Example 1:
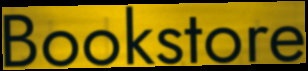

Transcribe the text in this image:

Bookstore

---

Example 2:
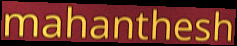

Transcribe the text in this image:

mahanthesh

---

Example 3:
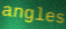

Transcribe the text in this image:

angles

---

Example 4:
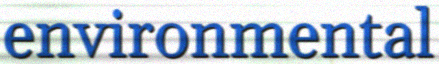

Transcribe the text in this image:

environmental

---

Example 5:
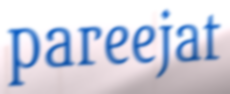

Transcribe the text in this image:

pareejat